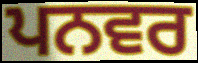
ਪਨਵਰ